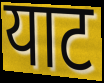
याट